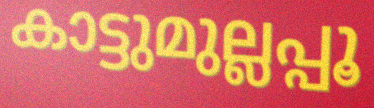
കാട്ടുമുല്ലപ്പൂ